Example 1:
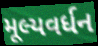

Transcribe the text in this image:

મૂલ્યવર્ધન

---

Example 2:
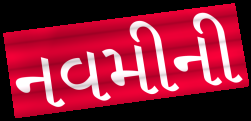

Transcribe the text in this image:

નવમીની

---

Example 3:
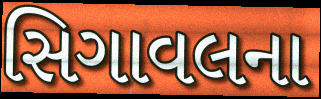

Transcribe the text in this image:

સિગાવલના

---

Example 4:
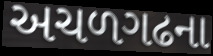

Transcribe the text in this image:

અચળગઢના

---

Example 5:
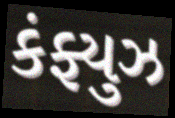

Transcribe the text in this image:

કંફ્યુઝ